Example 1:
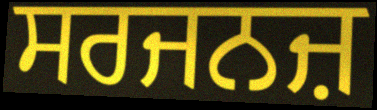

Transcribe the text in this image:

ਸਰਜਨਜ਼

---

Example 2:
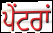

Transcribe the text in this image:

ਪੇਂਟਰਾਂ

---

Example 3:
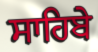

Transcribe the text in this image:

ਸਾਹਿਬੇ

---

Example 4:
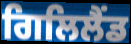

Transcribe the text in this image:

ਗਿਲਿਲੈਂਡ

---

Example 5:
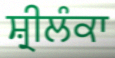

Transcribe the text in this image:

ਸ਼੍ਰੀਲੰਕਾ